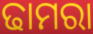
ଢାମରା